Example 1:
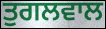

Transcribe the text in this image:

ਤੁਗਲਵਾਲ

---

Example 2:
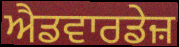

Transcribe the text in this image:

ਐਡਵਾਰਡੇਜ਼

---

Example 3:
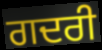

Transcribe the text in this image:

ਗਦਰੀ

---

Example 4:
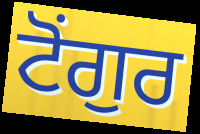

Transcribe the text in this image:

ਟੋਂਗੁਰ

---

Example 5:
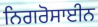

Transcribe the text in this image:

ਨਿਗਰੋਸਾਈਨ